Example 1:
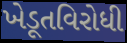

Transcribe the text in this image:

ખેડૂતવિરોધી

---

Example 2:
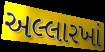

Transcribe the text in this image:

અલ્લારખાં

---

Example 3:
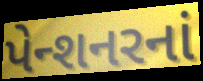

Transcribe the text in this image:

પેન્શનરનાં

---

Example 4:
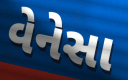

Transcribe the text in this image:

વેનેસા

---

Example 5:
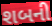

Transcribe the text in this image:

શબની